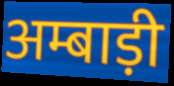
अम्बाड़ी